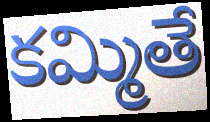
కమ్మితే